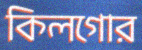
কিলগোর